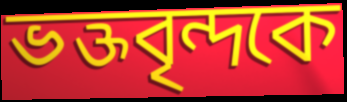
ভক্তবৃন্দকে